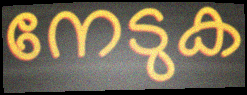
നേടുക